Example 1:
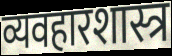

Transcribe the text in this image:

व्यवहारशास्त्र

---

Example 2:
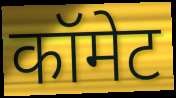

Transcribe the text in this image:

कॉमेट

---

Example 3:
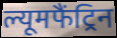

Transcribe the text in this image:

ल्यूमफैंट्रिन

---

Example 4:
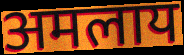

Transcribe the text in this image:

अमलाय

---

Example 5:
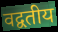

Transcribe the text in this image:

वद्वतीय